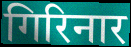
गिरिनार